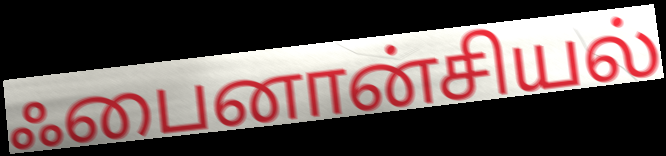
ஃபைனான்சியல்